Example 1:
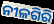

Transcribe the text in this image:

ନୀଳଗିରି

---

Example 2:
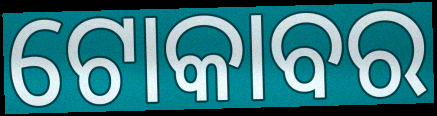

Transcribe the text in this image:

ଟୋକାବର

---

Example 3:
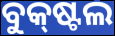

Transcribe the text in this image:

ବୁକ୍‌ଷ୍ଟଲ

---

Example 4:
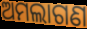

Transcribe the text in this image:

ଅମଲାଗଣ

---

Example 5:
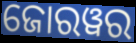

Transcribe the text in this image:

ଜୋରୱର